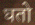
घतो